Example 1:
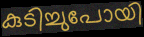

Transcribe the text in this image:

കുടിച്ചുപോയി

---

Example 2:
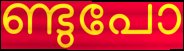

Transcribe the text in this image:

ണ്ടുപോ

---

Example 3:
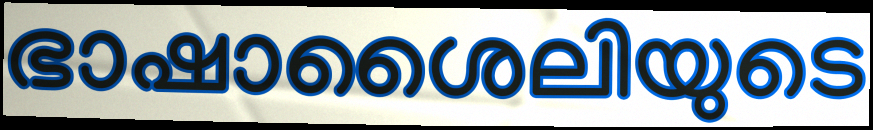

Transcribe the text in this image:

ഭാഷാശൈലിയുടെ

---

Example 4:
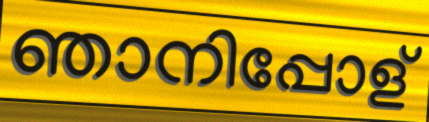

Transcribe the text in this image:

ഞാനിപ്പോള്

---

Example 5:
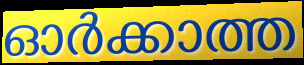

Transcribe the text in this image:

ഓർക്കാത്ത